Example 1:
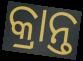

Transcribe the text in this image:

କ୍ରାନ୍ତ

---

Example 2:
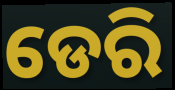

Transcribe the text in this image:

ଡେରି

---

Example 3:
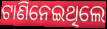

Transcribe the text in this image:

ଟାଣିନେଇଥିଲେ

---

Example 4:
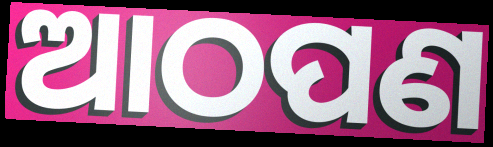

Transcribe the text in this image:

ଆଠପଣ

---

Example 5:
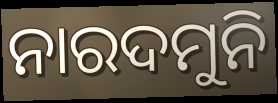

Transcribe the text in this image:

ନାରଦମୁନି